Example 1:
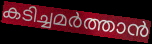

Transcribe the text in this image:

കടിച്ചമർത്താൻ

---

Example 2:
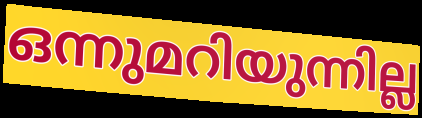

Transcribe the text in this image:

ഒന്നുമറിയുന്നില്ല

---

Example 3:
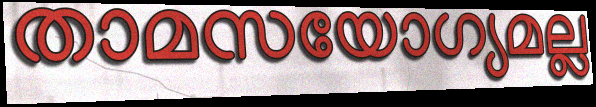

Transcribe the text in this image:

താമസയോഗ്യമല്ല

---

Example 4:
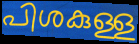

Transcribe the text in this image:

പിശകുള്ള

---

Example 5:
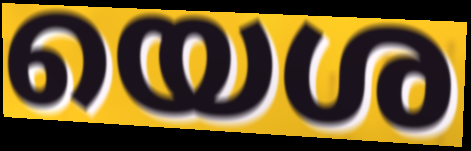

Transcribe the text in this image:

യെശ